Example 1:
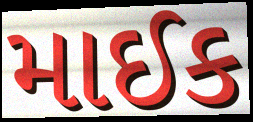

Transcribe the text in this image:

માઈક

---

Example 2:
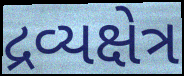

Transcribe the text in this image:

દ્રવ્યક્ષેત્ર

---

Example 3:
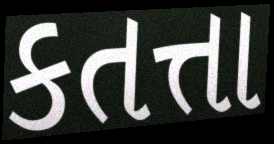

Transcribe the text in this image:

કતત્તા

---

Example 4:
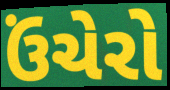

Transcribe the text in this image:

ઉંચેરો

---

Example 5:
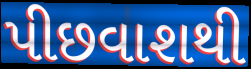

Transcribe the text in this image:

પીછવાશથી